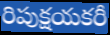
రిపుక్షయకరీ